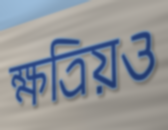
ক্ষত্রিয়ও